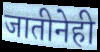
जातीनेही